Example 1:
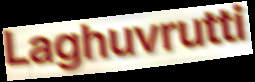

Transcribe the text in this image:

Laghuvrutti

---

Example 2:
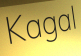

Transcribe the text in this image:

Kagal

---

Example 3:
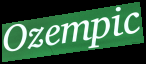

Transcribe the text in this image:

Ozempic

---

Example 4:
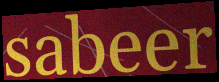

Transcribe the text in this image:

sabeer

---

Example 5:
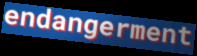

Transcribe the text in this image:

endangerment